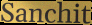
Sanchit